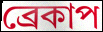
ব্রেকাপ